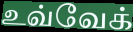
உவ்வேக்